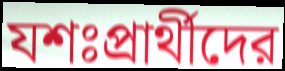
যশঃপ্রার্থীদের